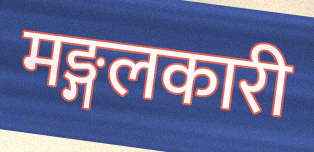
मङ्गलकारी